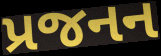
પ્રજનન